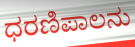
ಧರಣಿಪಾಲನು